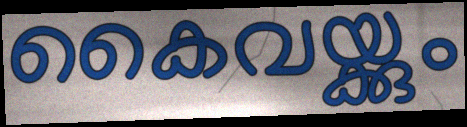
കൈവയ്ക്കും